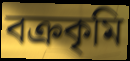
বক্রকৃমি